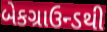
બેકગ્રાઉન્ડથી